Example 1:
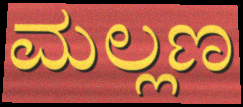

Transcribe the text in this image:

ಮಲ್ಲಣ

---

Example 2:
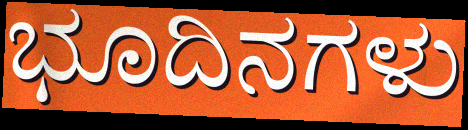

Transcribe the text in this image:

ಭೂದಿನಗಳು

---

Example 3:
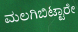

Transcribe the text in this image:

ಮಲಗಿಬಿಟ್ಟಾರೇ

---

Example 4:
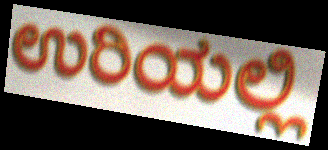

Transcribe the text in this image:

ಉರಿಯಲ್ಲಿ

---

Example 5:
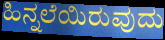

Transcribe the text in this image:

ಹಿನ್ನಲೆಯಿರುವುದು